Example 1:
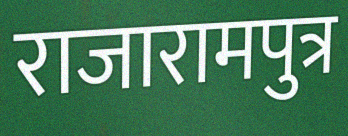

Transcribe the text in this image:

राजारामपुत्र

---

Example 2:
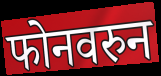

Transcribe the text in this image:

फोनवरुन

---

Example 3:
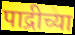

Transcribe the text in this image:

पाद्रीच्या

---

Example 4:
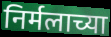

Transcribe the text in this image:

निर्मलाच्या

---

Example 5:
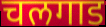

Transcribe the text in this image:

चलगाड